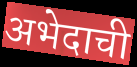
अभेदाची